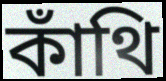
কাঁথি